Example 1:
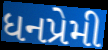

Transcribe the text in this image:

ધનપ્રેમી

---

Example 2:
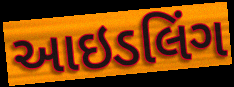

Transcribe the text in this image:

આઇડલિંગ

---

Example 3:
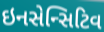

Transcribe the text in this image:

ઇનસેન્સિટિવ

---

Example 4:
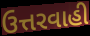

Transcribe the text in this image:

ઉત્તરવાહી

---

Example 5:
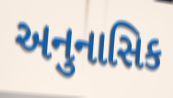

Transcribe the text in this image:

અનુનાસિક